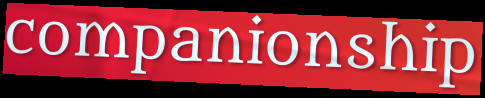
companionship